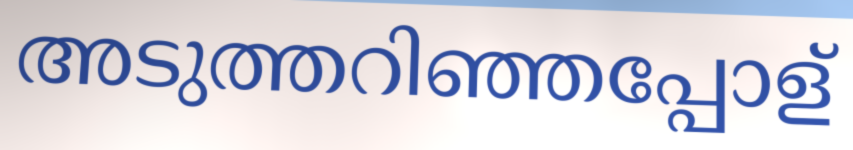
അടുത്തറിഞ്ഞപ്പോള്